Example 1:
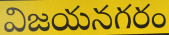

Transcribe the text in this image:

విజయనగరం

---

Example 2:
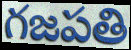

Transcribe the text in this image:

గజపతి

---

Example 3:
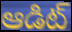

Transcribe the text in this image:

ఆడిట్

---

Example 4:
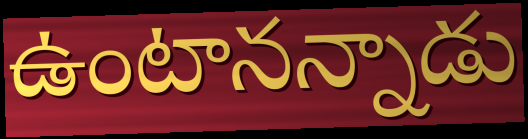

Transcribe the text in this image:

ఉంటానన్నాడు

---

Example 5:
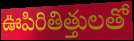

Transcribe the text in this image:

ఊపిరితిత్తులతో